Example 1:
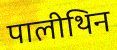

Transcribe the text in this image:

पालीथिन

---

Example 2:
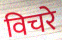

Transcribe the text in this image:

विचरे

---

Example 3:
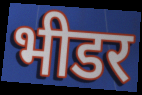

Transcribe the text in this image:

भीडर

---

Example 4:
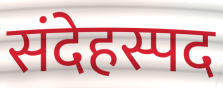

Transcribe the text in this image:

संदेहस्पद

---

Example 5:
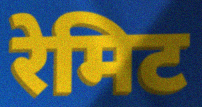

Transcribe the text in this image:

रेमिट